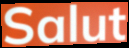
Salut